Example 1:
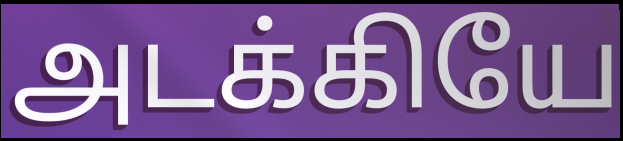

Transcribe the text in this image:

அடக்கியே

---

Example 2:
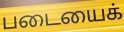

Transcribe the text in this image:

படையைக்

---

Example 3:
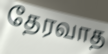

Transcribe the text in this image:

தேரவாத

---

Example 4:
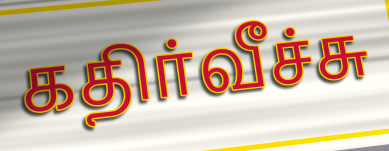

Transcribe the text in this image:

கதிர்வீச்சு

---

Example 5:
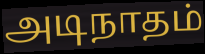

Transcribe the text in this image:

அடிநாதம்